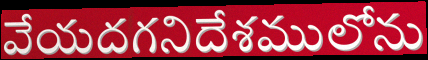
వేయదగనిదేశములోను